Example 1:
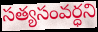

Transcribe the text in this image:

సత్యసంవర్ధని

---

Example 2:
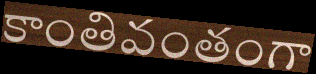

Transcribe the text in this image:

కాంతివంతంగా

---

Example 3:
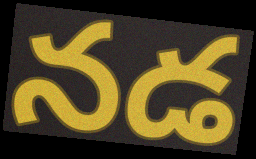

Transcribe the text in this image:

నడ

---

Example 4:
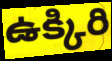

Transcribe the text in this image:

ఉక్కిరి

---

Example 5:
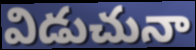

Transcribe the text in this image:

విడుచునా